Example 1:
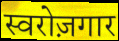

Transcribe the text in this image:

स्वरोज़गार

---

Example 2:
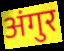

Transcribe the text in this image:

अंगुर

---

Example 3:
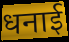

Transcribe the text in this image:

धनाई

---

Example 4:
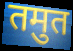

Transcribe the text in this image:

तमुत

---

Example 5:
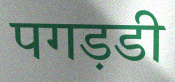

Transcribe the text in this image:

पगड़डी